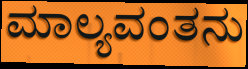
ಮಾಲ್ಯವಂತನು